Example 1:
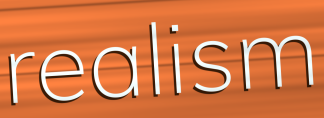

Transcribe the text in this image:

realism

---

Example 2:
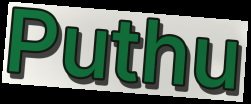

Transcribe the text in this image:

Puthu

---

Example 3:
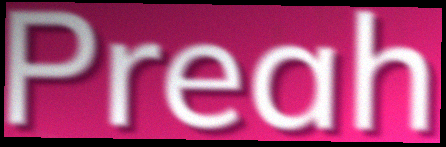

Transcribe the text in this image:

Preah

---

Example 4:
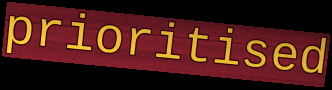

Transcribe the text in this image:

prioritised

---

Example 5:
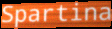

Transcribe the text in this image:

Spartina